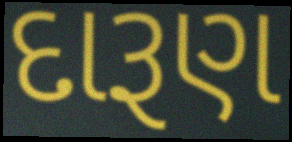
દારૂણ